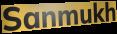
Sanmukh